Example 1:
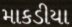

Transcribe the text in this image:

માકડીયા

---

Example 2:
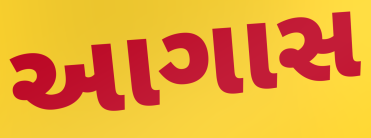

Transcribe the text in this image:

આગાસ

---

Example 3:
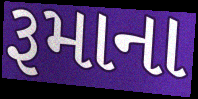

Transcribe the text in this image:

રૂમાના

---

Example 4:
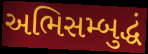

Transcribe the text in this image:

અભિસમ્બુદ્ધં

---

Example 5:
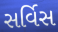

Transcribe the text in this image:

સર્વિસ